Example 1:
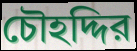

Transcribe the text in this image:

চৌহদ্দির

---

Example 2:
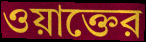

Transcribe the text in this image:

ওয়াক্তের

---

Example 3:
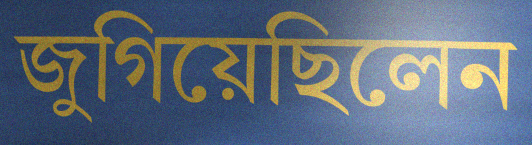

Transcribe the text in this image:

জুগিয়েছিলেন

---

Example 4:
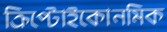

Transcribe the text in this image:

ক্রিপ্টোইকোনমিক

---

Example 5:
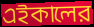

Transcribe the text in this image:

এইকালের